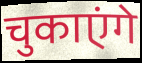
चुकाएंगे